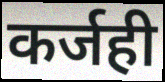
कर्जही